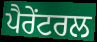
ਪੈਰੇਂਟਰਲ